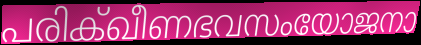
പരിക്ഖീണഭവസംയോജനാ